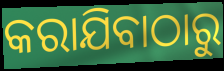
କରାଯିବାଠାରୁ